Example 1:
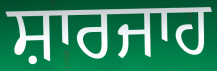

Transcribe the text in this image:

ਸ਼ਾਰਜਾਹ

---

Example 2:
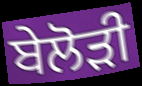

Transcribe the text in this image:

ਬੇਲੋੜੀ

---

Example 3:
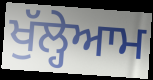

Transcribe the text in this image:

ਖੁੱਲ੍ਹੇਆਮ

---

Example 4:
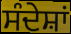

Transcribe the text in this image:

ਸੰਦੇਸ਼ਾਂ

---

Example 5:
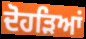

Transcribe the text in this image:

ਦੋਹੜਿਆਂ